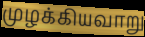
முழக்கியவாறு